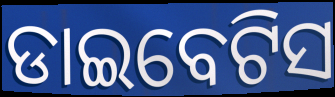
ଡାଇବେଟିସ